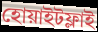
হোয়াইটফ্লাই